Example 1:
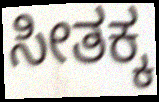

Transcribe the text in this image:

ಸೀತಕ್ಕ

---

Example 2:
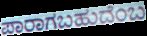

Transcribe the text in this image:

ಪಾರಾಗಬಹುದೆಂಬ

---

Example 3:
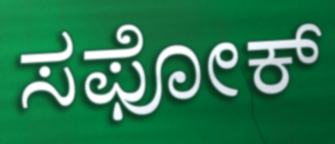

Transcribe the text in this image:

ಸಫೋಕ್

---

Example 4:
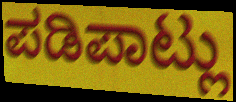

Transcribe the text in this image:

ಪಡಿಪಾಟ್ಲು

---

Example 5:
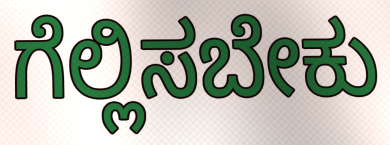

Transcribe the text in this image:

ಗೆಲ್ಲಿಸಬೇಕು